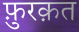
फ़ुरक़त